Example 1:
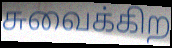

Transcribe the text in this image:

சுவைக்கிற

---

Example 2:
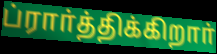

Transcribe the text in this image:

ப்ரார்த்திக்கிறார்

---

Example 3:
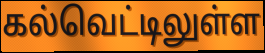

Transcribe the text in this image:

கல்வெட்டிலுள்ள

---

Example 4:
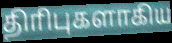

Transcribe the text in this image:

திரிபுகளாகிய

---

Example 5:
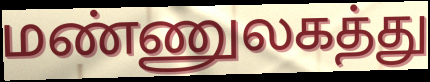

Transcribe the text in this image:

மண்ணுலகத்து